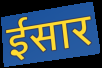
ईसार